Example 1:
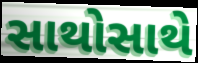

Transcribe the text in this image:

સાથોસાથે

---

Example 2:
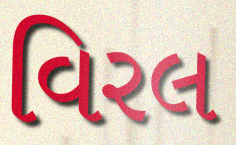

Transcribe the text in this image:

વિરલ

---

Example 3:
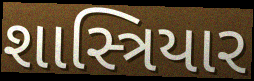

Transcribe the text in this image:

શાસ્ત્રિયાર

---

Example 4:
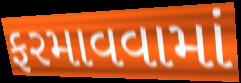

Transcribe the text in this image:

ફરમાવવામાં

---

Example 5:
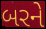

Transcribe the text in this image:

બરને